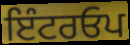
ਇੰਟਰਓਪ